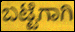
ಬಟ್ಟೆಗಾಗಿ